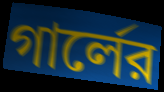
গার্লের